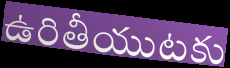
ఉరితీయుటకు